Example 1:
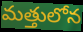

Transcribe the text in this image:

మత్తులోన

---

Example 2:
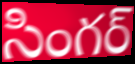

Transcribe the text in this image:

సింగర్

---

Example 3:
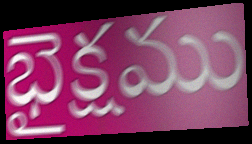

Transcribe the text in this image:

భైక్షము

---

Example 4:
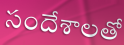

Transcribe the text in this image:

సందేశాలతో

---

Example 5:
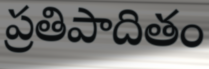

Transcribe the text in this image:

ప్రతిపాదితం